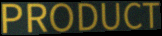
PRODUCT